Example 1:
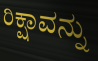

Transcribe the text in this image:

ರಿಕ್ಷಾವನ್ನು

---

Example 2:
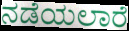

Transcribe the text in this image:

ನಡೆಯಲಾರೆ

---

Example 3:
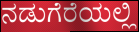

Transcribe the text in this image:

ನಡುಗೆರೆಯಲ್ಲಿ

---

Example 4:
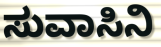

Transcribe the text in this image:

ಸುವಾಸಿನಿ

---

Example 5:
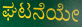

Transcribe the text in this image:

ಘಟನೆಯೇ